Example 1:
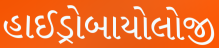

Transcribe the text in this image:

હાઈડ્રોબાયોલોજી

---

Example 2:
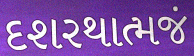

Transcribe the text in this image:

દશરથાત્મજં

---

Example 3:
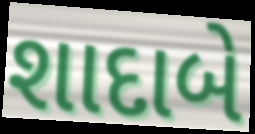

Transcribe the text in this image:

શાદાબે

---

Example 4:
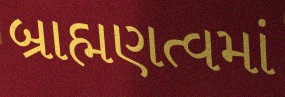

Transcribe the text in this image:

બ્રાહ્મણત્વમાં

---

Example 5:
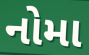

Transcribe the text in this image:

નોમા